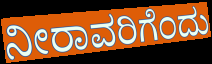
ನೀರಾವರಿಗೆಂದು